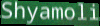
Shyamoli